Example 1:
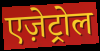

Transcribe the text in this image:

एज़ेट्रोल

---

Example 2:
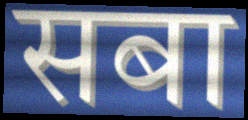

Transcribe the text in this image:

सबा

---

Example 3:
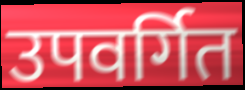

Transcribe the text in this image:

उपवर्गित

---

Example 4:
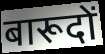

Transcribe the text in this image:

बारूदों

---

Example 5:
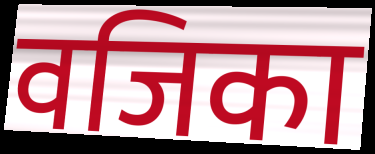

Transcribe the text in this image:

वजिका